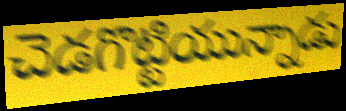
చెడగొట్టియున్నాడు